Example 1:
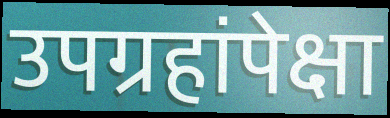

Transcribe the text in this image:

उपग्रहांपेक्षा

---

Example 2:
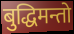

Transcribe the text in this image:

बुद्धिमन्तो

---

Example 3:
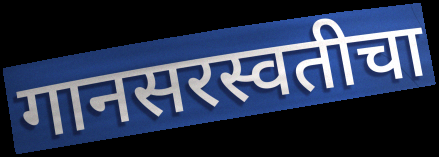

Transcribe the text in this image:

गानसरस्वतीचा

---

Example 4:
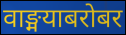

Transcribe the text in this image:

वाङ्मयाबरोबर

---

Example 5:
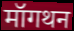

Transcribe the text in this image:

मॉगथन